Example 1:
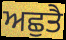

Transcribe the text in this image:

ਅਛੁਤੈ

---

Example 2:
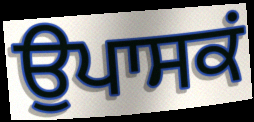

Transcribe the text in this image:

ਉਪਾਸਕਂ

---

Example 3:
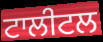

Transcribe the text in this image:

ਟਾਲੀਟਲ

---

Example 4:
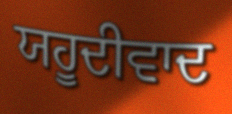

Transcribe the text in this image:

ਯਹੂਦੀਵਾਦ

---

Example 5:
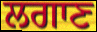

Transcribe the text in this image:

ਲਗਾਣ